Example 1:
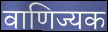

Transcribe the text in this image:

वाणिज्यक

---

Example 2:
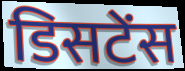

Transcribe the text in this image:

डिसटेंस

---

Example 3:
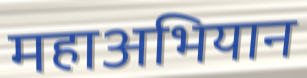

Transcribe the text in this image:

महाअभियान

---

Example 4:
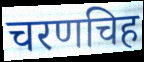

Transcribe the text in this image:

चरणचिह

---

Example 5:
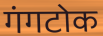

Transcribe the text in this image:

गंगटोक